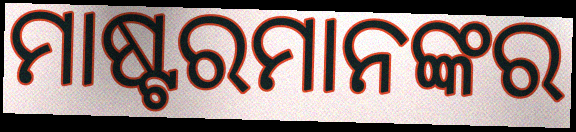
ମାଷ୍ଟରମାନଙ୍କର